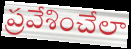
ప్రవేశించేలా